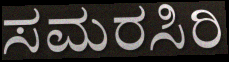
ಸಮರಸಿರಿ